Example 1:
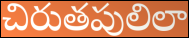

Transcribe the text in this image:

చిరుతపులిలా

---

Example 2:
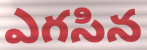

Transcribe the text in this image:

ఎగసిన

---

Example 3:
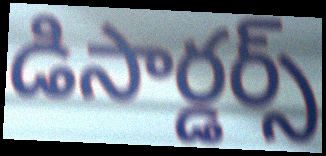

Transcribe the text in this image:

డిసార్డర్స్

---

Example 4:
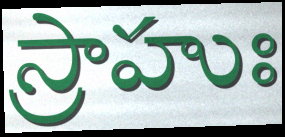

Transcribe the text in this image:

స్రాహుః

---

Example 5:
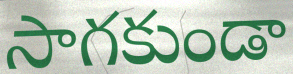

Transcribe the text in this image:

సాగకుండా